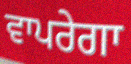
ਵਾਪਰੇਗਾ